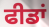
ਫੀਡਾਂ